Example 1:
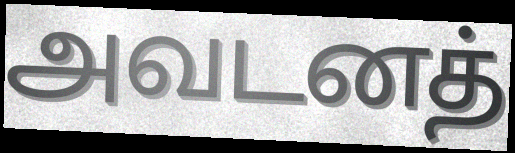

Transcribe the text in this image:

அவடனத்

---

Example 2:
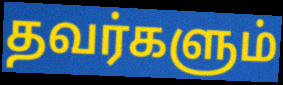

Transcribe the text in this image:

தவர்களும்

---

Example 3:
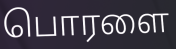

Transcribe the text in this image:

பொரளை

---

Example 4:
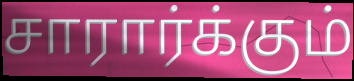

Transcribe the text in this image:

சாரார்க்கும்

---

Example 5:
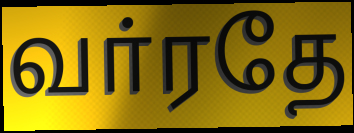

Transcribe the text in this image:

வர்ரதே